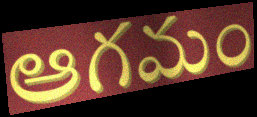
ఆగమం